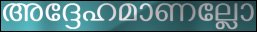
അദ്ദേഹമാണല്ലോ